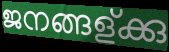
ജനങ്ങള്ക്കു